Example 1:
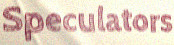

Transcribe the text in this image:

Speculators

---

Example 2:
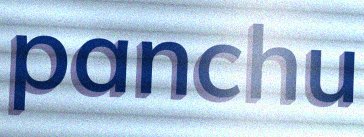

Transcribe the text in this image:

panchu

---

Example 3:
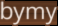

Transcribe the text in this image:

bymy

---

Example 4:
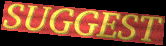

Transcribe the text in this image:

SUGGEST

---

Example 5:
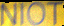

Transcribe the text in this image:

NIOT